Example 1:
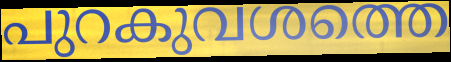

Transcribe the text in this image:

പുറകുവശത്തെ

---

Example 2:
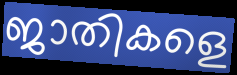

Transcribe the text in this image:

ജാതികളെ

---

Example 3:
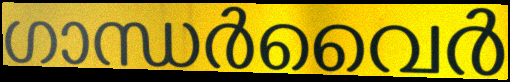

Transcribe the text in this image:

ഗാന്ധർവൈർ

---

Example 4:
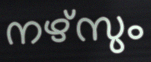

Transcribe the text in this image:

നഴ്സും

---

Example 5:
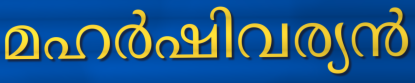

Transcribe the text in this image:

മഹർഷിവര്യൻ